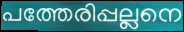
പത്തേരിപ്പല്ലനെ